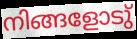
നിങ്ങളോടു്